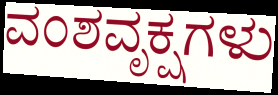
ವಂಶವೃಕ್ಷಗಳು